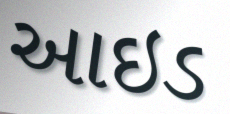
આઇડ